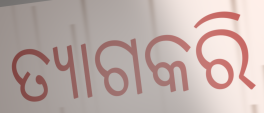
ତ୍ୟାଗକରି